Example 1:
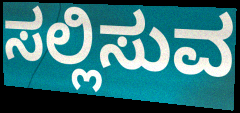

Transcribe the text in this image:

ಸಲ್ಲಿಸುವ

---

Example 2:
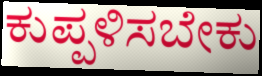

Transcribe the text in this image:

ಕುಪ್ಪಳಿಸಬೇಕು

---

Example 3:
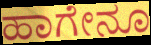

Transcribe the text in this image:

ಹಾಗೇನೂ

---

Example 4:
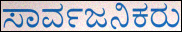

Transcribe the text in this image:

ಸಾರ್ವಜನಿಕರು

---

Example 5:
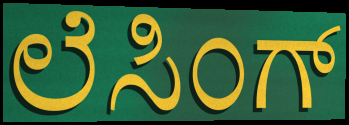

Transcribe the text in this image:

ಲೆಸಿಂಗ್